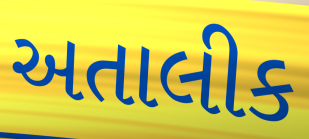
અતાલીક